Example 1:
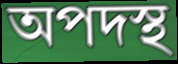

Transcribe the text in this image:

অপদস্থ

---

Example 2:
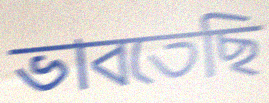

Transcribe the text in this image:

ভাবতেছি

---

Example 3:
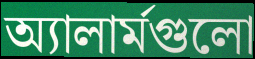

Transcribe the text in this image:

অ্যালার্মগুলো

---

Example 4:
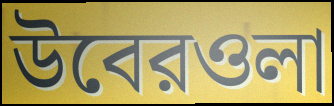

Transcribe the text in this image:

উবেরওলা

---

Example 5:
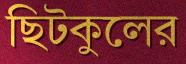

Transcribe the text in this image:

ছিটকুলের